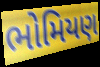
ભોમિયણ